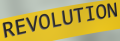
REVOLUTION